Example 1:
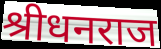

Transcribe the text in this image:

श्रीधनराज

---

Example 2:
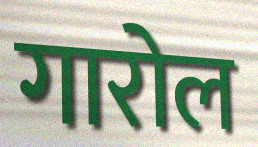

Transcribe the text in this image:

गारोल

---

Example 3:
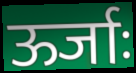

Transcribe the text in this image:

ऊर्जाः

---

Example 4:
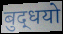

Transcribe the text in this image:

बुद्धयो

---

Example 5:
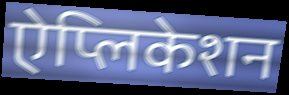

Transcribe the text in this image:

ऐप्लिकेशन